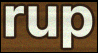
rup